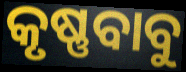
କୃଷ୍ଣବାବୁ